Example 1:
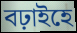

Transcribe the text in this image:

বঢ়াইহে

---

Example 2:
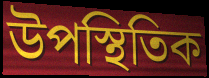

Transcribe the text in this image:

উপস্থিতিক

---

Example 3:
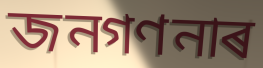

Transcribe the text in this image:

জনগণনাৰ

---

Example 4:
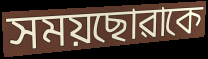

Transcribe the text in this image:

সময়ছোৱাকে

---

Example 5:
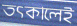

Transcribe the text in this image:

তৎকালেই